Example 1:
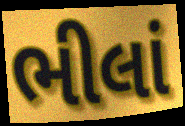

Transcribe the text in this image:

ભીલાં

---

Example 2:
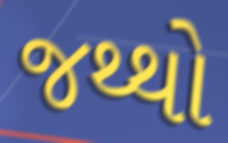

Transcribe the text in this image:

જથ્થો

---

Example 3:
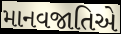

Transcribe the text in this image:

માનવજાતિએ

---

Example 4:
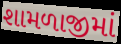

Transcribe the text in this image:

શામળાજીમાં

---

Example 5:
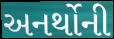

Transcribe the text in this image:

અનર્થોની